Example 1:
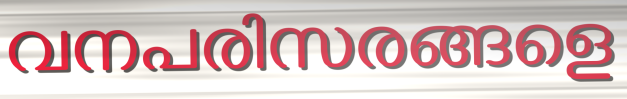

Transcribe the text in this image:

വനപരിസരങ്ങളെ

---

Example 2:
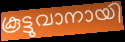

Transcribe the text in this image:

കൂട്ടുവാനായി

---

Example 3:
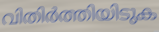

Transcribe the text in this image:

വിതിർത്തിയിടുക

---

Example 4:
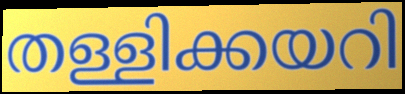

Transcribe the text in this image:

തള്ളിക്കയറി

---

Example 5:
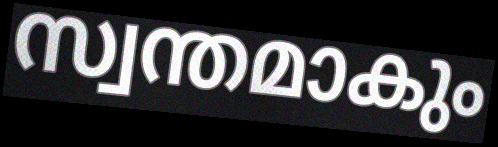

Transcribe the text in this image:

സ്വന്തമാകും